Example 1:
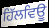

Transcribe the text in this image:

ਹਿੱਲਵਿਊ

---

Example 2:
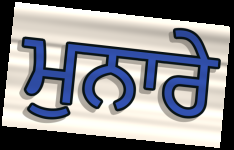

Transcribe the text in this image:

ਮੁਨਾਰੇ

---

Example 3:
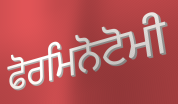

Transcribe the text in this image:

ਫੋਰਮਿਨੋਟੋਮੀ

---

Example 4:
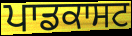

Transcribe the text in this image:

ਪਾਡਕਾਸਟ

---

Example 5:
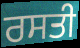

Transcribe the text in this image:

ਰਸਤੀ